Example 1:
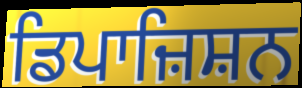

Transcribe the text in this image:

ਡਿਪਾਜ਼ਿਸ਼ਨ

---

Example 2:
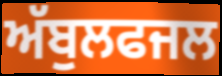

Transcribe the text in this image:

ਅੱਬੁਲਫਜਲ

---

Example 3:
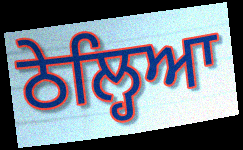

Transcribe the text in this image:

ਠੇਲ੍ਹਿਆ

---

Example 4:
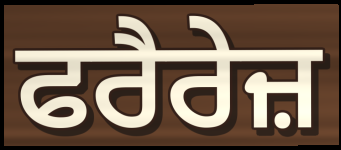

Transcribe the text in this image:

ਫਰੈਰੇਜ਼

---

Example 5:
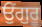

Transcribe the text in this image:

ਉਂਗੁਰੂ